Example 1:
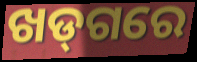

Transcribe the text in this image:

ଖଡ୍‌ଗରେ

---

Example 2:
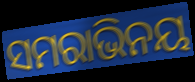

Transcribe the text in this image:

ସମରାଭିନୟ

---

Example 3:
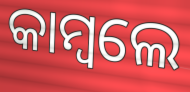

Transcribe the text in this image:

କାମ୍ବଲେ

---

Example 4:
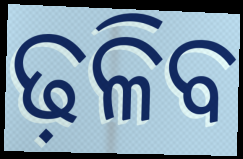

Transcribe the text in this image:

ଢ଼ଳିବ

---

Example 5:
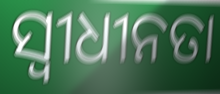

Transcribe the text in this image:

ସ୍ୱୀଧୀନତା